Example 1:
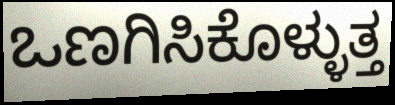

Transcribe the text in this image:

ಒಣಗಿಸಿಕೊಳ್ಳುತ್ತ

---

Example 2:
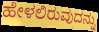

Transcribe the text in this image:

ಹೇಳಲಿರುವುದನ್ನು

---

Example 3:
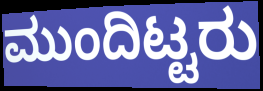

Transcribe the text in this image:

ಮುಂದಿಟ್ಟರು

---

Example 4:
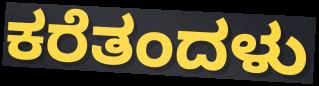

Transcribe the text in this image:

ಕರೆತಂದಳು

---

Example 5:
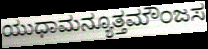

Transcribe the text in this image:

ಯುಧಾಮನ್ಯೂತ್ತಮೌಂಜಸ